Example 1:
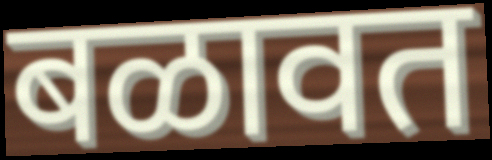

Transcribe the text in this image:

बळावत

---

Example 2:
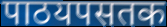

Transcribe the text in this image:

पाठयपसतक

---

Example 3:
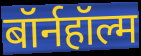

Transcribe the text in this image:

बॉर्नहॉल्म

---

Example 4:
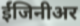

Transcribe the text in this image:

ईंजिनीअर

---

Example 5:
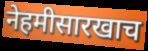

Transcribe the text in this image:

नेहमीसारखाच